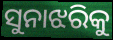
ସୁନାଝରିକୁ